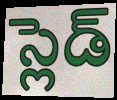
స్లెడ్